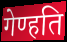
गेण्हति